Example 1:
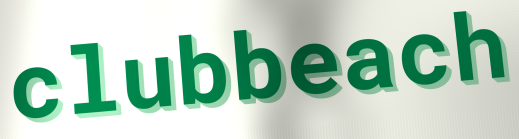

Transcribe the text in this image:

clubbeach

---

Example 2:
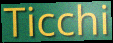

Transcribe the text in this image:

Ticchi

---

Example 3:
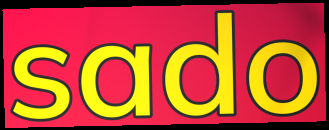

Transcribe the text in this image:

sado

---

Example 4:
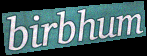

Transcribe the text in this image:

birbhum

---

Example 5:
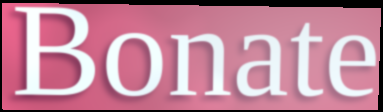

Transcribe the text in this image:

Bonate